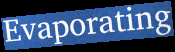
Evaporating